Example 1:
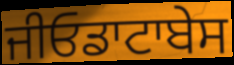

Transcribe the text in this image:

ਜੀਓਡਾਟਾਬੇਸ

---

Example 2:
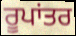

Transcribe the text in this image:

ਰੂਪਾਂਤਰ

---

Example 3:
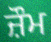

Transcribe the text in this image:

ਜ਼ੌਮ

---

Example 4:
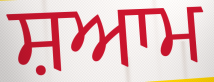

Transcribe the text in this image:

ਸ਼ਆਮ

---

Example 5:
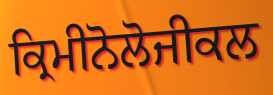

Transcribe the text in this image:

ਕ੍ਰਿਮੀਨੋਲੋਜੀਕਲ